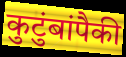
कुटुंबांपैकी